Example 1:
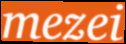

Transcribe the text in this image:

mezei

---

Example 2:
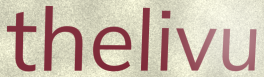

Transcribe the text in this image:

thelivu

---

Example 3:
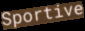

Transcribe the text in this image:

Sportive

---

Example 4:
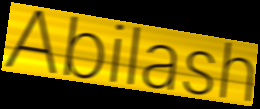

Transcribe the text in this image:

Abilash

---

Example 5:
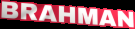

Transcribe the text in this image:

BRAHMAN